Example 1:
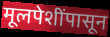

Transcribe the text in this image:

मूलपेशींपासून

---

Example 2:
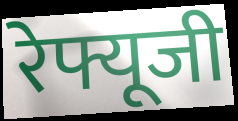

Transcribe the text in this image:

रेफ्यूजी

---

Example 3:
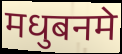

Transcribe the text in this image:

मधुबनमे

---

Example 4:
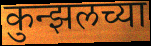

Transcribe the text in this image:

कुन्झलच्या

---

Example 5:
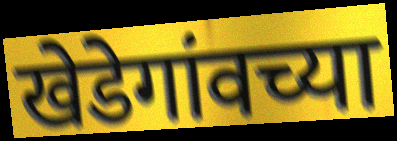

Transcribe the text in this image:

खेडेगांवच्या